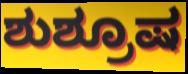
ಶುಶ್ರೂಷ